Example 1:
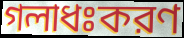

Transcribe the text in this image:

গলাধঃকরণ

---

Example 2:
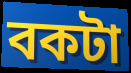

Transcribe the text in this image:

বকটা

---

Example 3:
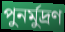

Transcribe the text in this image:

পুনর্মুদ্রণ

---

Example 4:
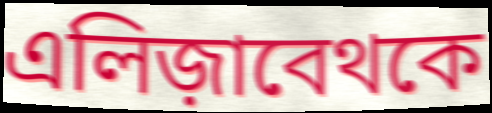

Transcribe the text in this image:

এলিজ়াবেথকে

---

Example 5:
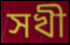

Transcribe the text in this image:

সখী